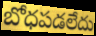
బోధపడలేదు